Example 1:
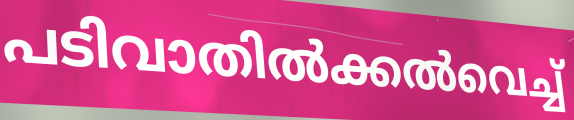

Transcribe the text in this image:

പടിവാതിൽക്കൽവെച്ച്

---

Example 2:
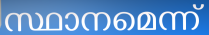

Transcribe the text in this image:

സ്ഥാനമെന്ന്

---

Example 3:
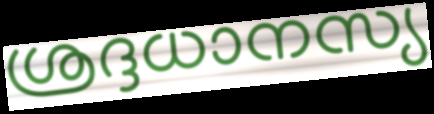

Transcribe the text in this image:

ശ്രദ്ദധാനസ്യ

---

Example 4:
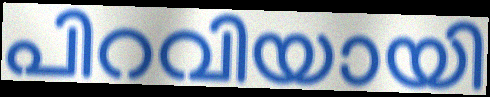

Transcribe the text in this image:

പിറവിയായി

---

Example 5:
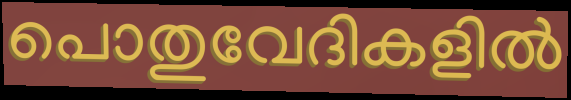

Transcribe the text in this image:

പൊതുവേദികളിൽ